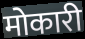
मोकारी